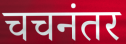
चचनंतर